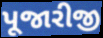
પૂજારીજી